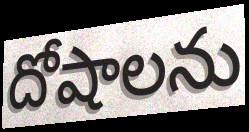
దోషాలను